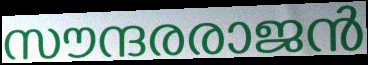
സൗന്ദരരാജൻ